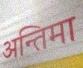
अन्तिमा